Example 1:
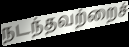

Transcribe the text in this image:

நடந்தவற்றைச்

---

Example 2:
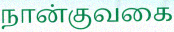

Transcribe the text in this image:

நான்குவகை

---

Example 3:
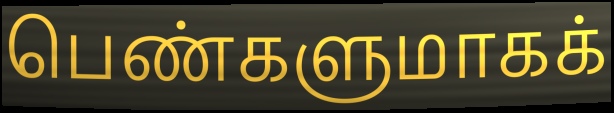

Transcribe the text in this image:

பெண்களுமாகக்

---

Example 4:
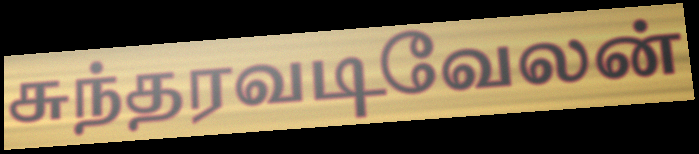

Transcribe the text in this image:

சுந்தரவடிவேலன்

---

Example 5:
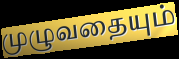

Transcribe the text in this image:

முழுவதையும்